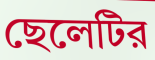
ছেলেটির